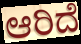
ಆರಿದೆ